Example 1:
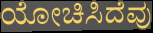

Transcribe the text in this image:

ಯೋಚಿಸಿದೆವು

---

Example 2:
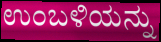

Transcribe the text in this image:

ಉಂಬಳಿಯನ್ನು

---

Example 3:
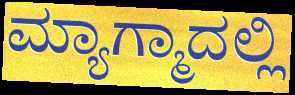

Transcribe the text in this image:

ಮ್ಯಾಗ್ಮಾದಲ್ಲಿ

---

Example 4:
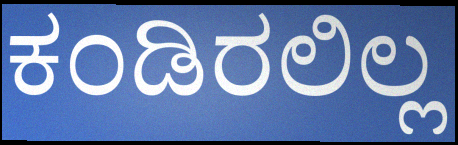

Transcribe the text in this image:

ಕಂಡಿರಲಿಲ್ಲ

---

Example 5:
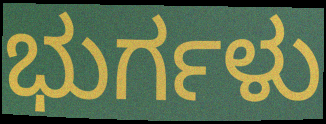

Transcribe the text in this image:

ಭುರ್ಗಳು